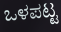
ಒಳಪಟ್ಟ